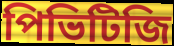
পিভিটিজি